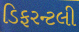
ડિફરન્ટલી